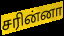
சரின்னா